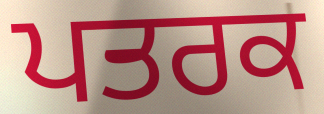
ਪਤਰਕ